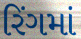
રિંગમાં